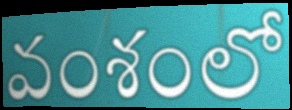
వంశంలో